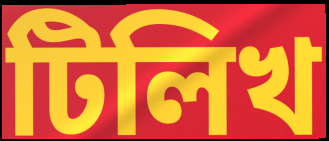
টিলিখ